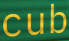
cub